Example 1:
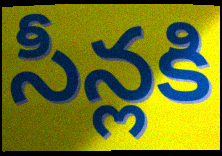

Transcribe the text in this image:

సీన్లకి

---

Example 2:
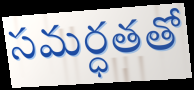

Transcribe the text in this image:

సమర్ధతతో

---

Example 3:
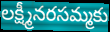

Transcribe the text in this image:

లక్ష్మీనరసమ్మకు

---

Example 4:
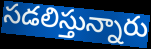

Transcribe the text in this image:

సడలిస్తున్నారు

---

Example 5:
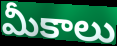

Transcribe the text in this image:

మీకాలు